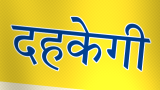
दहकेगी